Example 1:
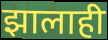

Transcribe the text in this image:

झालाही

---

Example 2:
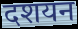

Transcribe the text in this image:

दशयन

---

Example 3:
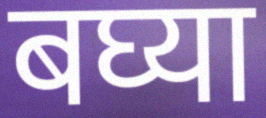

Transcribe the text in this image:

बघ्या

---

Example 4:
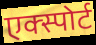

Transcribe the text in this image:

एक्‍स्पोर्ट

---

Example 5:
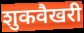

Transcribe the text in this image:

शुकवैखरी